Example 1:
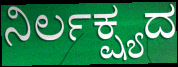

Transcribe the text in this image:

ನಿರ್ಲಕ್ಷ್ಯದ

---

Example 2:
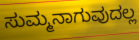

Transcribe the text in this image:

ಸುಮ್ಮನಾಗುವುದಲ್ಲ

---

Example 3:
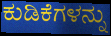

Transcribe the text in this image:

ಕುಡಿಕೆಗಳನ್ನು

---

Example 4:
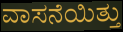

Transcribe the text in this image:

ವಾಸನೆಯಿತ್ತು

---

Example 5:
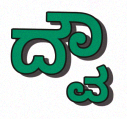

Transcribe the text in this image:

ದ್ವೌ